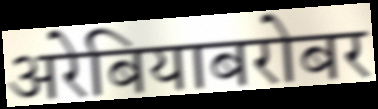
अरेबियाबरोबर